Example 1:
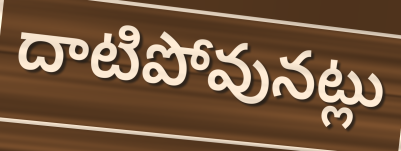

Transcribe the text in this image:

దాటిపోవునట్లు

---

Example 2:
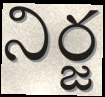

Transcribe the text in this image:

నిర్జ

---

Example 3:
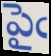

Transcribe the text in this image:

పైఁ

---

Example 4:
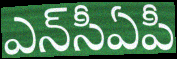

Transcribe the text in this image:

ఎన్‌సీఏపీ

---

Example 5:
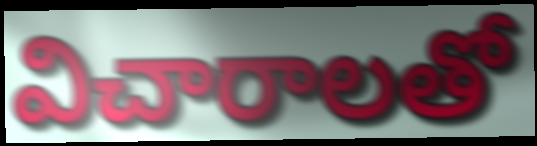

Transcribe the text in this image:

విచారాలతో